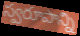
స్వరూపాన్ని